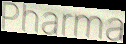
Pharma